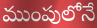
ముంపులోనే